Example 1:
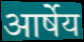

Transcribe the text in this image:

आर्षेय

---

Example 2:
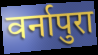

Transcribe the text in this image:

वर्नापुरा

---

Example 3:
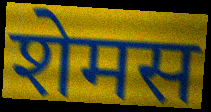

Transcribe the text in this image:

शेमस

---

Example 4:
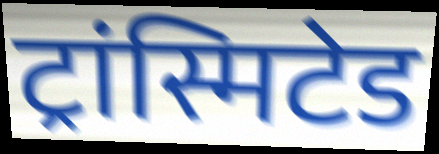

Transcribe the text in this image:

ट्रांस्मिटेड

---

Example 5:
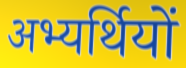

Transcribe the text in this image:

अभ्यर्थियों